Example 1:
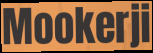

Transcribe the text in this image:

Mookerji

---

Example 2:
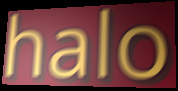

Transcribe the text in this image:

halo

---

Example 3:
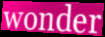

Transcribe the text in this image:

wonder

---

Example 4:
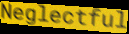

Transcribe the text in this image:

Neglectful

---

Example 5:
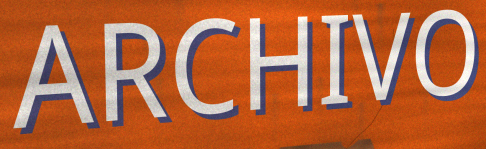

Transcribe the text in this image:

ARCHIVO